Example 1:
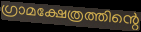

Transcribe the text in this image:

ഗ്രാമക്ഷേത്രത്തിന്റെ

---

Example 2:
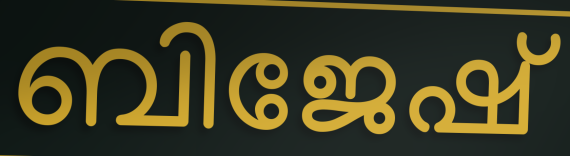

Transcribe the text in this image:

ബിജേഷ്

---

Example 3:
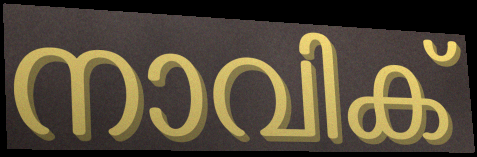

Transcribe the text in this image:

നാവിക്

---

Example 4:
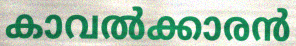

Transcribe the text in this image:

കാവൽക്കാരൻ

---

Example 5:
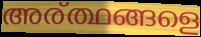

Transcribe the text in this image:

അര്ത്ഥങ്ങളെ